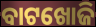
ବାଟଖୋଜି